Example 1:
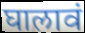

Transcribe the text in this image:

घालावं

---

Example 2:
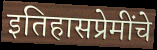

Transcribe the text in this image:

इतिहासप्रेमींचे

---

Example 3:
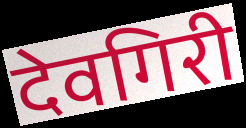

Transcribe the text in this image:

देवगिरी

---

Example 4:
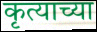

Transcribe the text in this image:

कृत्याच्या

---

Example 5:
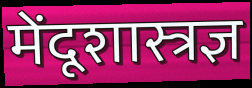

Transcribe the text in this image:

मेंदूशास्त्रज्ञ